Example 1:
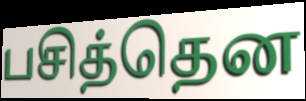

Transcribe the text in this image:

பசித்தென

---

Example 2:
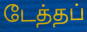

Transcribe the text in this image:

டேத்தப்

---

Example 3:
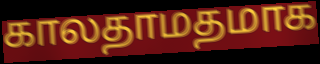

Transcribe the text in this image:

காலதாமதமாக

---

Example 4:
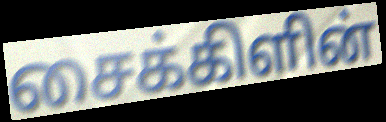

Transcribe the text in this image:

சைக்கிளின்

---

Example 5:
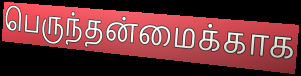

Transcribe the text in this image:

பெருந்தன்மைக்காக